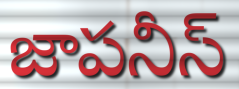
జాపనీస్